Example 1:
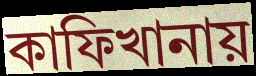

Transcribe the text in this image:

কাফিখানায়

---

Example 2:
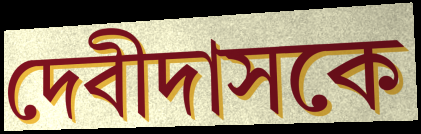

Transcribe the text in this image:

দেবীদাসকে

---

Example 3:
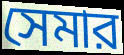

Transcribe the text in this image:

সেমার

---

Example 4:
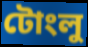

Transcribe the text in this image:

টোংলু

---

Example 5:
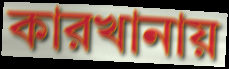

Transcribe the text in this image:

কারখানায়